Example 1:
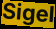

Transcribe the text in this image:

Sigel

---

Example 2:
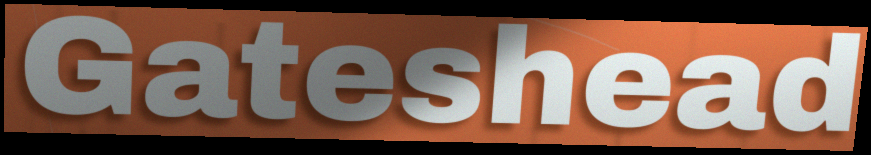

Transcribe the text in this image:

Gateshead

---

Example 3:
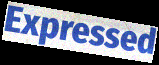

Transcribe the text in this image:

Expressed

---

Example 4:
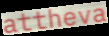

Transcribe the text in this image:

attheva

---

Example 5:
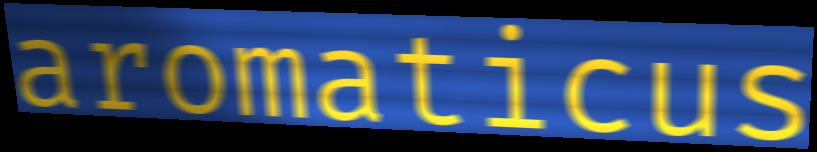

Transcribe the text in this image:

aromaticus